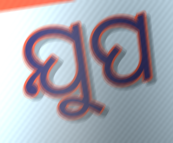
ଯୁପ